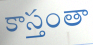
కాస్తంతా